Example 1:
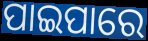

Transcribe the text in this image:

ପାଇପାରେ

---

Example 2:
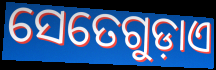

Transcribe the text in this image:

ସେତେଗୁଡ଼ାଏ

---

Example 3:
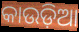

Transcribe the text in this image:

କାଉଡ଼ିଆ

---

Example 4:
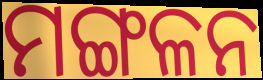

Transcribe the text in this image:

ମଙ୍ଗଳନ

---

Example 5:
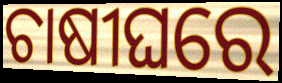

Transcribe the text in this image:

ଚାଷୀଘରେ